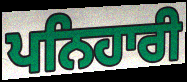
ਪਨਿਹਾਰੀ